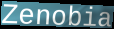
Zenobia